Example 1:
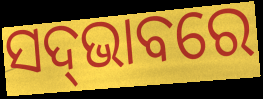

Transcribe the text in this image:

ସଦ୍‌ଭାବରେ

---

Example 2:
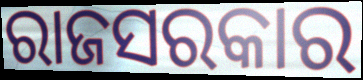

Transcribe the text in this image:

ରାଜସରକାର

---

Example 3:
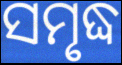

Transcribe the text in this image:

ସମୃଦ୍ଧ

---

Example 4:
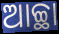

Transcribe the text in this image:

ଆଚ୍ଛା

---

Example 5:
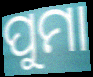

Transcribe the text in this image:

ପୁମା